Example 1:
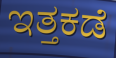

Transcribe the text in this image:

ಇತ್ತಕಡೆ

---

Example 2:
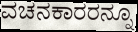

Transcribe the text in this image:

ವಚನಕಾರರನ್ನೂ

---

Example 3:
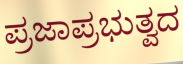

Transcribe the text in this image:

ಪ್ರಜಾಪ್ರಭುತ್ವದ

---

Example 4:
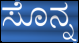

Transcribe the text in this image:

ಸೊನ್ನ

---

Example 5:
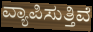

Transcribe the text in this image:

ವ್ಯಾಪಿಸುತ್ತಿವೆ